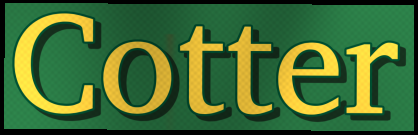
Cotter